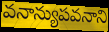
వనాన్యుపవనాని